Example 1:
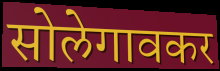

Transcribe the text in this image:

सोलेगावकर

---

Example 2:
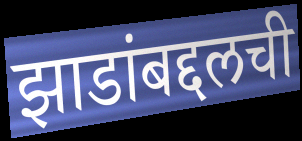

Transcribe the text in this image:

झाडांबद्दलची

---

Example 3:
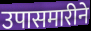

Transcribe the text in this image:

उपासमारीने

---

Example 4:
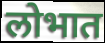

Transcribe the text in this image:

लोभात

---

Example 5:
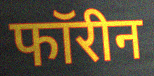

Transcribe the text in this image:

फॉरीन